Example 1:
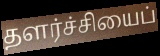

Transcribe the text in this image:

தளர்ச்சியைப்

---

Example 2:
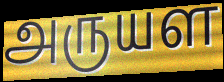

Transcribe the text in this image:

அருயள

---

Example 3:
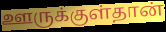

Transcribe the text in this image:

ஊருக்குள்தான்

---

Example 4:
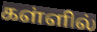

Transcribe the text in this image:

கள்ளில்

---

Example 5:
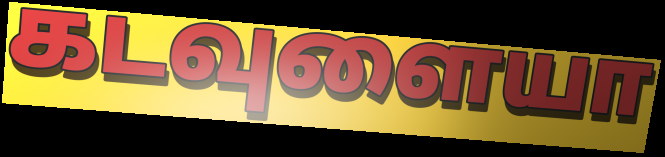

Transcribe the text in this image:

கடவுளையா